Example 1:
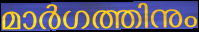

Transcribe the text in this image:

മാർഗത്തിനും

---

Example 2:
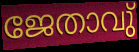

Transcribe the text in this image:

ജേതാവു്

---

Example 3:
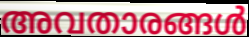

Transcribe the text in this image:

അവതാരങ്ങൾ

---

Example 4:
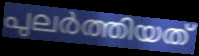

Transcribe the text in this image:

പുലർത്തിയത്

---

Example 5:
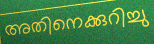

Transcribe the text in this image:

അതിനെക്കുറിച്ചു